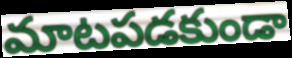
మాటపడకుండా